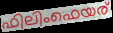
ഫിലിംഫെയര്